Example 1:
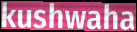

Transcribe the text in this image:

kushwaha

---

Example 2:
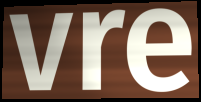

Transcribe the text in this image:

vre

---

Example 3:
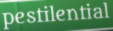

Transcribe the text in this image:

pestilential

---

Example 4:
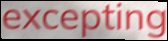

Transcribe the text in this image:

excepting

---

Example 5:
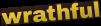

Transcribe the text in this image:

wrathful